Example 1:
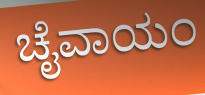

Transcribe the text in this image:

ಚೈವಾಯಂ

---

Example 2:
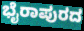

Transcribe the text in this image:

ಭೈರಾಪುರದ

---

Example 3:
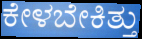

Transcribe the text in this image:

ಕೇಳಬೇಕಿತ್ತು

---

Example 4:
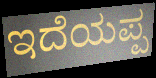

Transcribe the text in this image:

ಇದೆಯಪ್ಪ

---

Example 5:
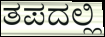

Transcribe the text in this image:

ತಪದಲ್ಲಿ